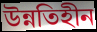
উন্নতিহীন